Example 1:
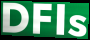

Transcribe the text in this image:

DFIs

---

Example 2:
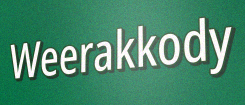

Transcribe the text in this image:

Weerakkody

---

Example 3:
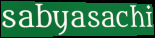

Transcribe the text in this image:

sabyasachi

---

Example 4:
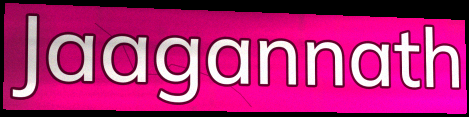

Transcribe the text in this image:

Jaagannath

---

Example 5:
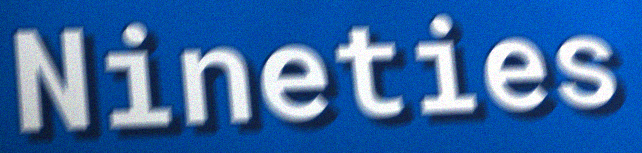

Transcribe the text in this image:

Nineties